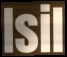
Isil